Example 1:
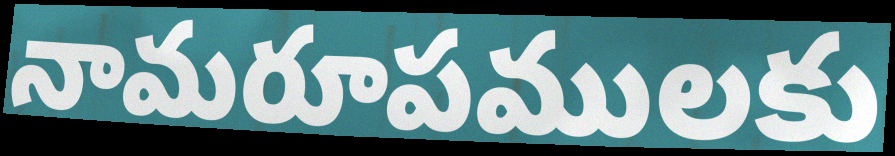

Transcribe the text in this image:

నామరూపములకు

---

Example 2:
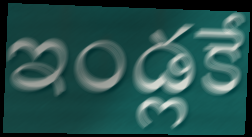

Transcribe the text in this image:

ఇండ్లకే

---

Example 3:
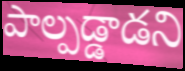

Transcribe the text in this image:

పాల్పడ్డాడని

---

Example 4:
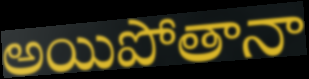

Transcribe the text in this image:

అయిపోతానా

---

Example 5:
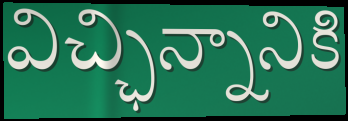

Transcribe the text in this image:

విచ్ఛిన్నానికి